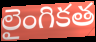
లైంగికత